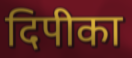
दिपीका